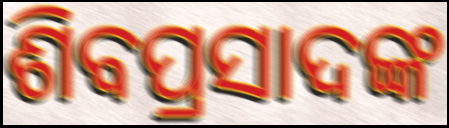
ଶିବପ୍ରସାଦଙ୍କ